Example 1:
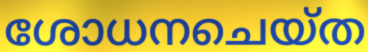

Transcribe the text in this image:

ശോധനചെയ്ത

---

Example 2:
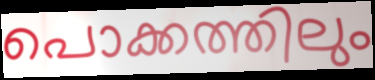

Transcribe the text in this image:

പൊക്കത്തിലും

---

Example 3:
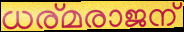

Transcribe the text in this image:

ധര്മരാജന്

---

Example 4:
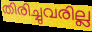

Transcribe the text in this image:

തിരിച്ചുവരില്ല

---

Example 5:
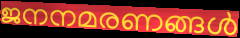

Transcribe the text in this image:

ജനനമരണങ്ങൾ